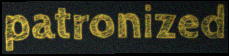
patronized